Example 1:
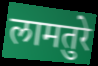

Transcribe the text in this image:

लामतुरे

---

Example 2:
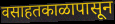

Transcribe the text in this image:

वसाहतकाळापासून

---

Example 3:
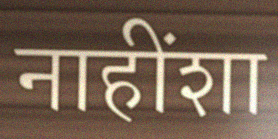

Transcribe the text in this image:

नाहींशा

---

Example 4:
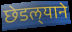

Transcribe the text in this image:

छेडल्याने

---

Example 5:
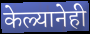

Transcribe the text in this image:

केल्यानेही